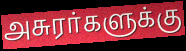
அசுரர்களுக்கு